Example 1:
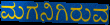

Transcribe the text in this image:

ಮಗನಿಗಿರುವ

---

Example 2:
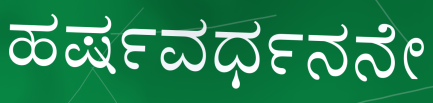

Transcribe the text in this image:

ಹರ್ಷವರ್ಧನನೇ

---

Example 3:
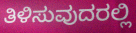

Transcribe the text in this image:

ತಿಳಿಸುವುದರಲ್ಲಿ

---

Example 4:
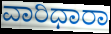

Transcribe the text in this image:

ವಾರಿಧಾರಾ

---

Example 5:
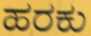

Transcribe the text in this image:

ಹರಕು